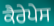
ਕੈਰੇਪੇਸ